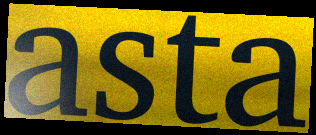
asta